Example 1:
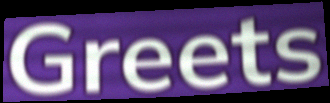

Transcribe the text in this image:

Greets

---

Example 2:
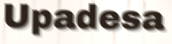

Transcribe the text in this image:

Upadesa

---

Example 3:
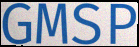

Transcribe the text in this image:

GMSP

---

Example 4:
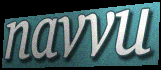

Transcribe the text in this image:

navvu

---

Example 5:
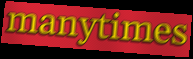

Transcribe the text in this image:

manytimes